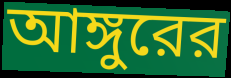
আঙ্গুরের